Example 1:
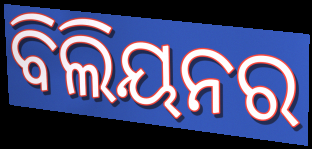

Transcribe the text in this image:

ବିଲିୟନର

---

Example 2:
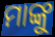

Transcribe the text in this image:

ମାଙ୍କୁ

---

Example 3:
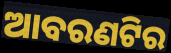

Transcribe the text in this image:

ଆବରଣଟିର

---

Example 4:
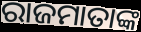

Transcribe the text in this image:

ରାଜମାତାଙ୍କ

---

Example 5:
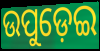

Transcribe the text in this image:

ଉପୁଡ଼େଇ